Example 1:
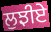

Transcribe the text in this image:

ਲੁਝੀਏ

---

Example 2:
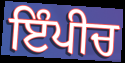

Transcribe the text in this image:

ਇੰਪੀਚ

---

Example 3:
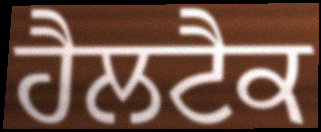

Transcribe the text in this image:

ਹੈਲਟੈਕ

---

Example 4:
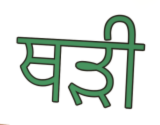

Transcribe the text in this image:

ਥੜੀ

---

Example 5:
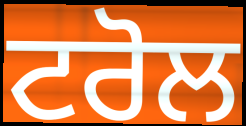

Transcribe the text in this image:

ਟਰੋਲ